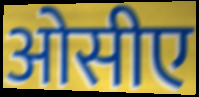
ओसीए